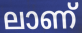
ലാണ്